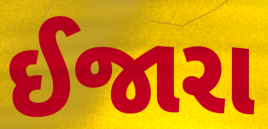
ઈજારા